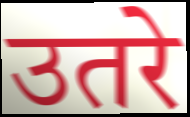
उतरे